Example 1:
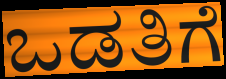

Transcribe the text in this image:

ಒಡತಿಗೆ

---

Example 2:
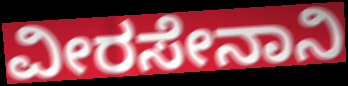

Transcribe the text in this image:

ವೀರಸೇನಾನಿ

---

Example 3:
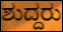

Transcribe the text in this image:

ಶುದ್ದರು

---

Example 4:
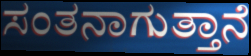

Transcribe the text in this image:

ಸಂತನಾಗುತ್ತಾನೆ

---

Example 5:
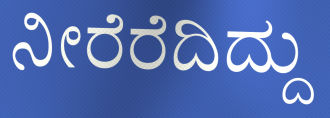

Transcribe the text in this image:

ನೀರೆರೆದಿದ್ದು